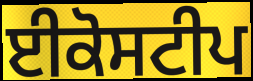
ਈਕੋਸਟੀਪ